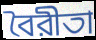
বৈরীতা